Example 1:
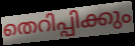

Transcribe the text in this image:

തെറിപ്പിക്കും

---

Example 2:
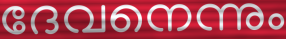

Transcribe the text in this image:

ദേവനെന്നും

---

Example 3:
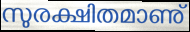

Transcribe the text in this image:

സുരക്ഷിതമാണു്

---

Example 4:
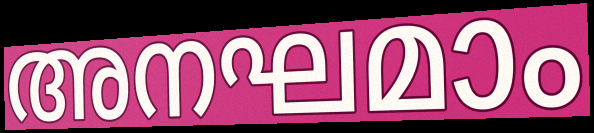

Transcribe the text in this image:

അനഘമാം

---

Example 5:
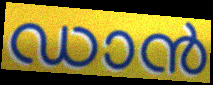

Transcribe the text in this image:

ഡാൻ